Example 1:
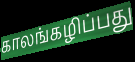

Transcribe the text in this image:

காலங்கழிப்பது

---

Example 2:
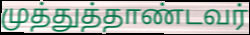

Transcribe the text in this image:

முத்துத்தாண்டவர்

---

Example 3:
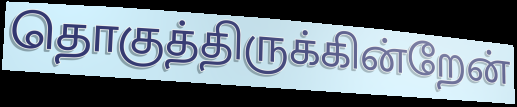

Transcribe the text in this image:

தொகுத்திருக்கின்றேன்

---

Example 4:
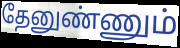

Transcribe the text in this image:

தேனுண்ணும்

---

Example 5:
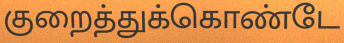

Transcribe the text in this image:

குறைத்துக்கொண்டே